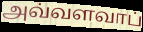
அவ்வளவாப்